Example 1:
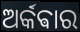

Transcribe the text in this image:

ଅର୍କଵାର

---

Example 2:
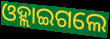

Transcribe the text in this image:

ଓହ୍ଲାଇଗଲେ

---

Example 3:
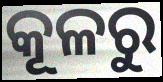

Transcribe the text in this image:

କୂଳରୁ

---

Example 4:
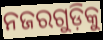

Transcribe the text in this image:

ନଜରଗୁଡ଼ିକୁ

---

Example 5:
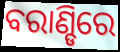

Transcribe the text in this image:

ବରାଣ୍ଡିରେ